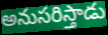
అనుసరిస్తాడు